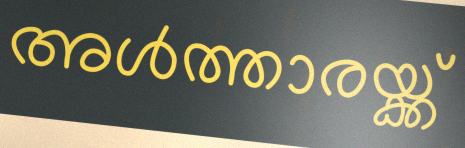
അൾത്താരയ്ക്ക്